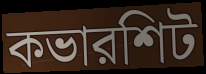
কভারশিট